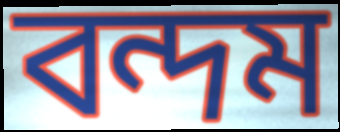
বন্দম